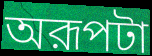
অরূপটা